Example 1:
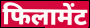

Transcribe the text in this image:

फिलामेंट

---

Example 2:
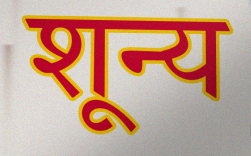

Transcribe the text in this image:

शून्य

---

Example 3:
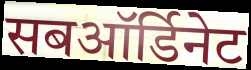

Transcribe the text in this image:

सबऑर्डिनेट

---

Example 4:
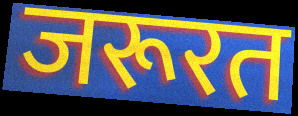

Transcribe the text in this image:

जरूरत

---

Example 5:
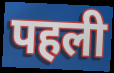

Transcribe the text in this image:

पहली